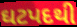
ઘટપદથી